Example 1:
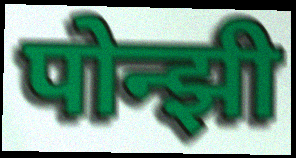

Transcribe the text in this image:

पोन्झी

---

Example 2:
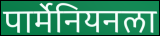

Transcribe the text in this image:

पार्मेनियनला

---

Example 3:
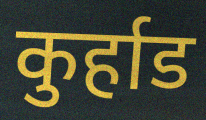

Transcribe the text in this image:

कुर्हाड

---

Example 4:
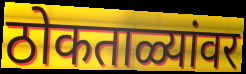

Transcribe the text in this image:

ठोकताळ्यांवर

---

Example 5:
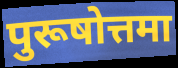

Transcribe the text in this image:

पुरूषोत्तमा